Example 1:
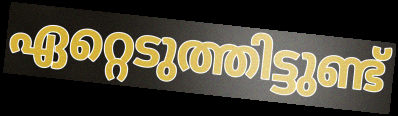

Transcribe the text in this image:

ഏറ്റെടുത്തിട്ടുണ്ട്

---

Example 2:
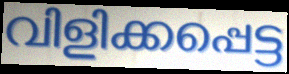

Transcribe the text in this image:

വിളിക്കപ്പെട്ട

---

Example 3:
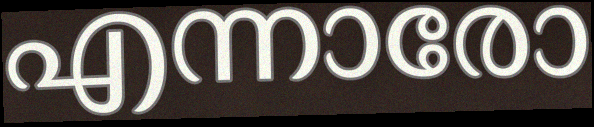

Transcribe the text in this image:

എന്നാരോ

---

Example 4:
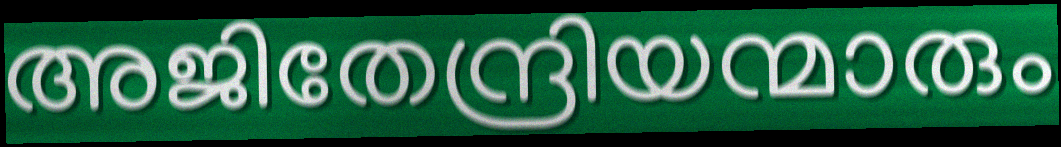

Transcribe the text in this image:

അജിതേന്ദ്രിയന്മാരും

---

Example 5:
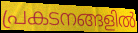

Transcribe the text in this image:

പ്രകടനങ്ങളിൽ